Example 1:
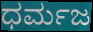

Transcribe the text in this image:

ಧರ್ಮಜ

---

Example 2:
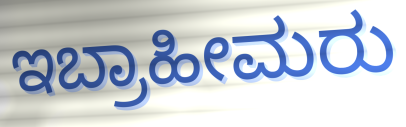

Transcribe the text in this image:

ಇಬ್ರಾಹೀಮರು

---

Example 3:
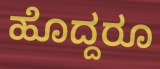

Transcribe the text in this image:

ಹೊದ್ದರೂ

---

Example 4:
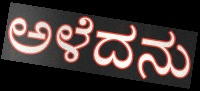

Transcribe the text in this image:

ಅಳೆದನು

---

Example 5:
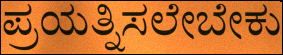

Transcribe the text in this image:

ಪ್ರಯತ್ನಿಸಲೇಬೇಕು